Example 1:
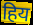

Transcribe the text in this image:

हिय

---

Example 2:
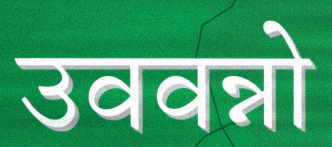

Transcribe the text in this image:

उववन्नो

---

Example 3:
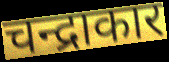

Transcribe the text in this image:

चन्द्राकार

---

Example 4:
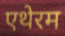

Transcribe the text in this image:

एथेरम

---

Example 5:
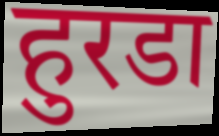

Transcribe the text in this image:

हुरडा